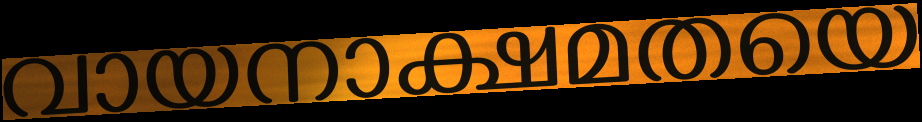
വായനാക്ഷമതയെ